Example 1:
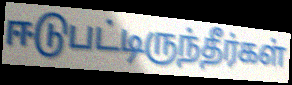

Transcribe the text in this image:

ஈடுபட்டிருந்தீர்கள்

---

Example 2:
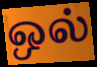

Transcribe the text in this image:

ஒல்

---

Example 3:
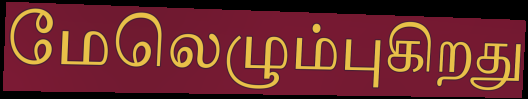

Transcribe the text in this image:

மேலெழும்புகிறது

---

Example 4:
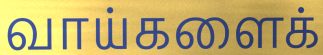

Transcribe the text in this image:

வாய்களைக்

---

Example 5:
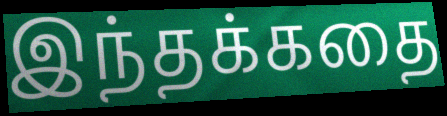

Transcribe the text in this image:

இந்தக்கதை